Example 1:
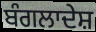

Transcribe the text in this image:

ਬੰਗਲਾਦੇਸ਼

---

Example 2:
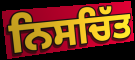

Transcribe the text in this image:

ਨਿਸਚਿੱਤ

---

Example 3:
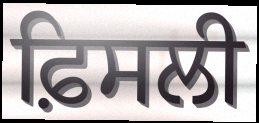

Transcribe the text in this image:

ਫ਼ਿਸਲੀ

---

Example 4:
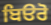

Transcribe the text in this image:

ਬਿੳਰੋ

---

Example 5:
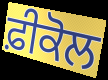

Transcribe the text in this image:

ਫ਼ੀਕੋਲ